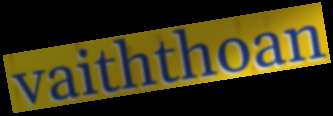
vaiththoan